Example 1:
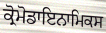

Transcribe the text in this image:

ਕ੍ਰੋਮੋਡਾਇਨਾਮਿਕਸ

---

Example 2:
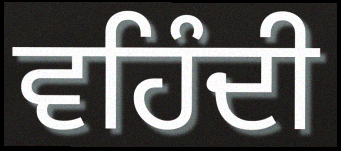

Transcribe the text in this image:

ਵਹਿੰਦੀ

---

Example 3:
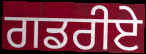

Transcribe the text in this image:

ਗਡਰੀਏ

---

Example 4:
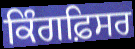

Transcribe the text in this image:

ਕਿੰਗਫ਼ਿਸਰ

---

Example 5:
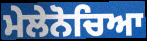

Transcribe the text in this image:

ਮੇਲੇਨੋਚਿਆ